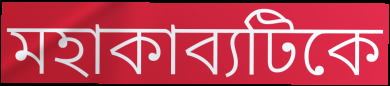
মহাকাব্যটিকে